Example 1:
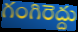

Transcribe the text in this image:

గంగిరెద్దు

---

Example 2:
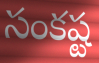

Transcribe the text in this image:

సంకష్ట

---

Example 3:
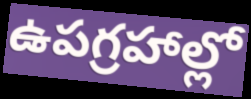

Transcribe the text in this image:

ఉపగ్రహాల్లో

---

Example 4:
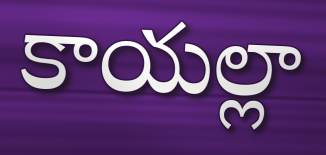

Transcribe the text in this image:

కాయల్లా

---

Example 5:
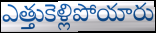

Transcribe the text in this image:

ఎత్తుకెళ్లిపోయారు